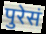
पुरेसं